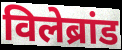
विलेब्रांड